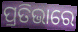
ପ୍ରତିଭାରେ